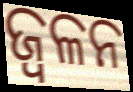
ଜ୍ଵଳନ